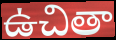
ఉచితా